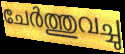
ചേർത്തുവച്ചു